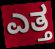
ಎತ್ತ